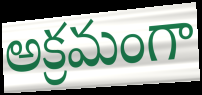
అక్రమంగా